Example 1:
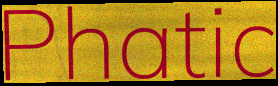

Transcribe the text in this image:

Phatic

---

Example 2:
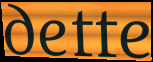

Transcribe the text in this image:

dette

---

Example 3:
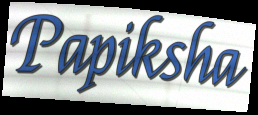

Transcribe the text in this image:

Papiksha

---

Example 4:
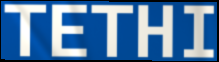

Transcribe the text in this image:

TETHI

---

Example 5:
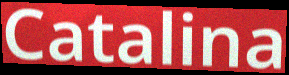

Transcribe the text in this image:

Catalina